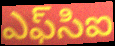
ఎఫ్‌సిఐ